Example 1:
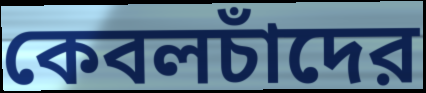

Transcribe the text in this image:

কেবলচাঁদের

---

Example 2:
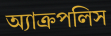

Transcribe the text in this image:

অ্যাক্রপলিস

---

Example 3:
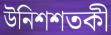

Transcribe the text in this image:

উনিশশতকী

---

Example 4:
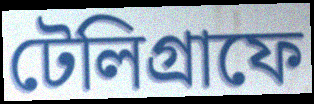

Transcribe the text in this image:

টেলিগ্রাফে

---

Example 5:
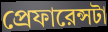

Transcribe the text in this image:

প্রেফারেন্সটা